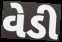
વેડી